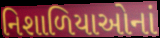
નિશાળિયાઓનાં